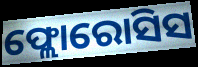
ଫ୍ଲୋରୋସିସ